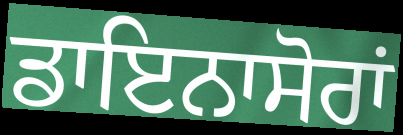
ਡਾਇਨਾਸੋਰਾਂ